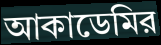
আকাডেমির